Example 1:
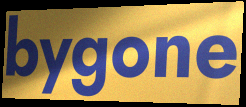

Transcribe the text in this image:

bygone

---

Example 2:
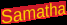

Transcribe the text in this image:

Samatha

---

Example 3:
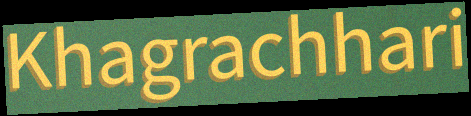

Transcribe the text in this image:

Khagrachhari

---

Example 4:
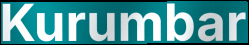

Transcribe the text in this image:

Kurumbar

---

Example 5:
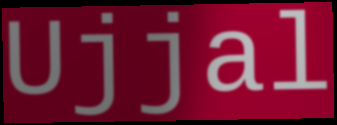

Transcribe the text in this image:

Ujjal